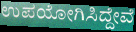
ಉಪಯೋಗಿಸಿದ್ದೇವೆ